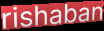
rishaban